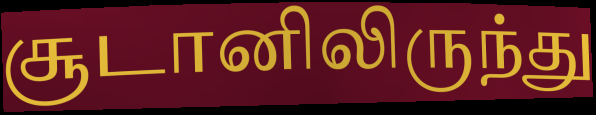
சூடானிலிருந்து